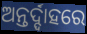
ଅନ୍ତର୍ଦ୍ଦାହରେ